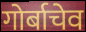
गोर्बाचेव